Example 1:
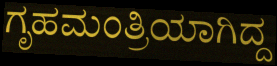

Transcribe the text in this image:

ಗೃಹಮಂತ್ರಿಯಾಗಿದ್ದ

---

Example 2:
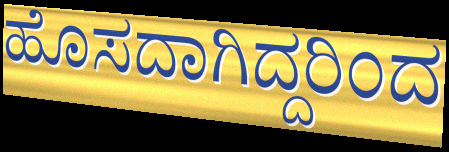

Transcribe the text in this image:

ಹೊಸದಾಗಿದ್ದರಿಂದ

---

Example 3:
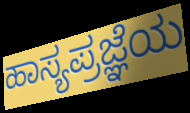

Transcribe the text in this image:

ಹಾಸ್ಯಪ್ರಜ್ಞೆಯ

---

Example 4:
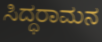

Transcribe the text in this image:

ಸಿದ್ಧರಾಮನ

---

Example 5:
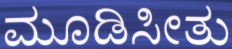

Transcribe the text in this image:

ಮೂಡಿಸೀತು